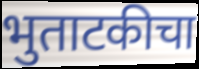
भुताटकीचा